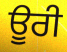
ਊਰੀ